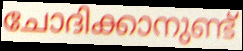
ചോദിക്കാനുണ്ട്